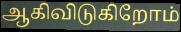
ஆகிவிடுகிறோம்